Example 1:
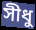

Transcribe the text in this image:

সীধু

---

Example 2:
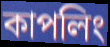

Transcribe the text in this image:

কাপলিং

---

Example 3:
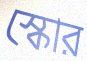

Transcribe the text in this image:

স্কোর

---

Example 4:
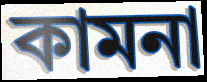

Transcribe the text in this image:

কামনা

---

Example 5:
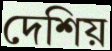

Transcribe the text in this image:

দেশিয়